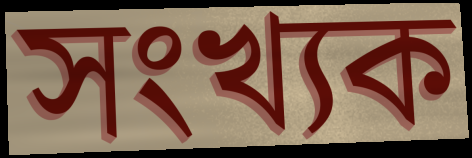
সংখ্যক